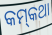
କମ୍‌କଥା